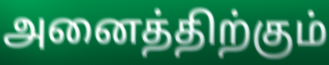
அனைத்திற்கும்